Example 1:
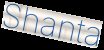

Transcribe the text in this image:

Shanta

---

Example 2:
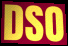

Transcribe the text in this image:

DSO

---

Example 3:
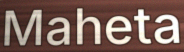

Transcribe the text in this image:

Maheta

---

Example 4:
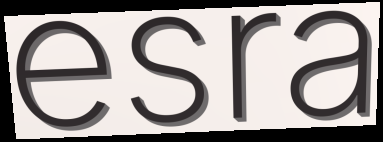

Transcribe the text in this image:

esra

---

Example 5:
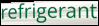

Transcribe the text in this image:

refrigerant